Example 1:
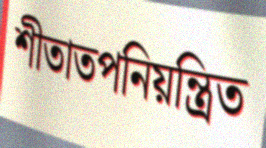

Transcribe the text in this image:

শীতাতপনিয়ন্ত্রিত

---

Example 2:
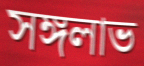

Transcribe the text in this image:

সঙ্গলাভ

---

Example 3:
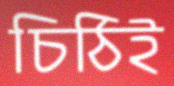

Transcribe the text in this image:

চিঠিই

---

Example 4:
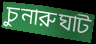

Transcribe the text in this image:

চুনারুঘাট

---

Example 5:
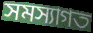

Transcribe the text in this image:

সমস্যাগত